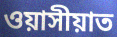
ওয়াসীয়াত